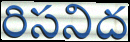
రిసనిద